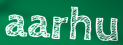
aarhu